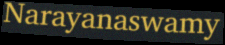
Narayanaswamy